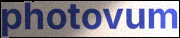
photovum